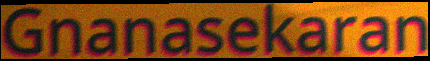
Gnanasekaran